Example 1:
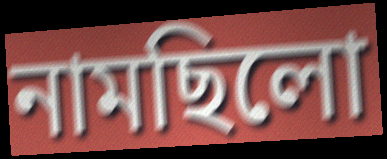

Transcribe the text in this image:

নামছিলো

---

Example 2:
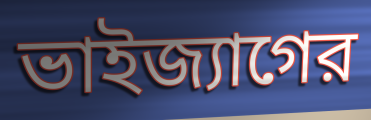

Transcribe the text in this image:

ভাইজ্যাগের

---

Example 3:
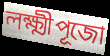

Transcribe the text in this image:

লক্ষ্মীপূজো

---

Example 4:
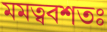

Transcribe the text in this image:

মমত্ববশতঃ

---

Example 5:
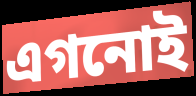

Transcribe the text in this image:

এগনোই